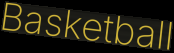
Basketball